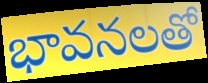
భావనలతో